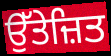
ਉੱਤੇਜ਼ਿਤ